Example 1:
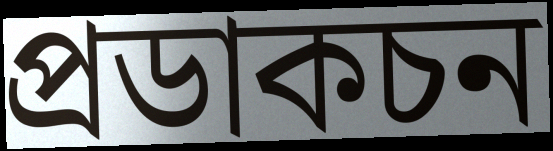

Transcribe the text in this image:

প্ৰডাকচন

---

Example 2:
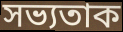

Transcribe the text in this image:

সভ্যতাক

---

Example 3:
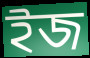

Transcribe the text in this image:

ইজ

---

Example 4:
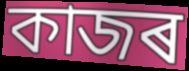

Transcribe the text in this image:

কাজৰ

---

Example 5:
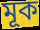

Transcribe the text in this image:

মূক